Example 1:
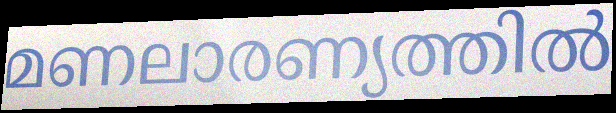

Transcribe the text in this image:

മണലാരണ്യത്തിൽ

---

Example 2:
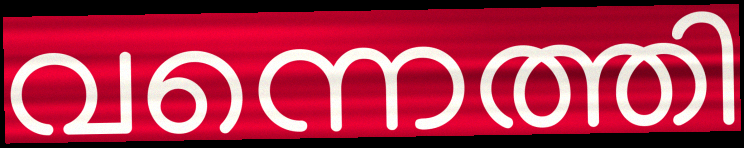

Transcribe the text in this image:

വന്നെത്തി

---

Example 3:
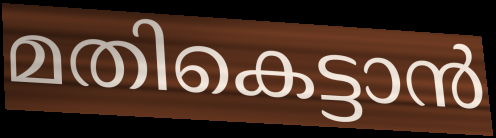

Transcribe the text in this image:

മതികെട്ടാൻ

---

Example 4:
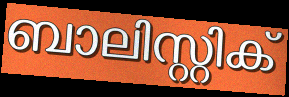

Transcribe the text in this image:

ബാലിസ്റ്റിക്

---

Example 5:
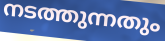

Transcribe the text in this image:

നടത്തുന്നതും